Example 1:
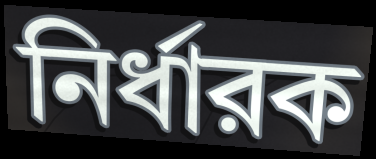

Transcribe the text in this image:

নির্ধারক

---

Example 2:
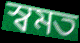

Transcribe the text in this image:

স্বমত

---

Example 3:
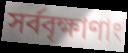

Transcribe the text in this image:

সর্ববৃক্ষাণাং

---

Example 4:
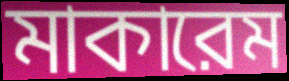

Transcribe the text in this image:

মাকারেম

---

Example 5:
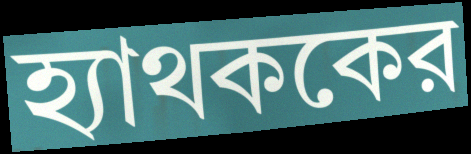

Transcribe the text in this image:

হ্যাথককের